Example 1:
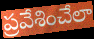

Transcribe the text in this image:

ప్రవేశించేలా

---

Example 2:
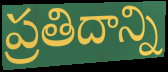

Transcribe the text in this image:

ప్రతిదాన్ని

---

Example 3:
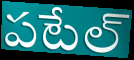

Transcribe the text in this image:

పటేల్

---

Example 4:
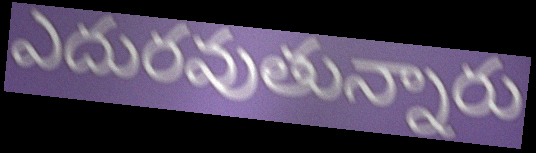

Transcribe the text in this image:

ఎదురవుతున్నారు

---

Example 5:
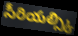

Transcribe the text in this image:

సీరియల్స్కి